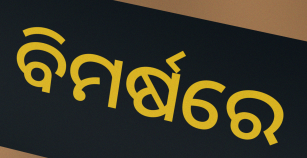
ବିମର୍ଷରେ